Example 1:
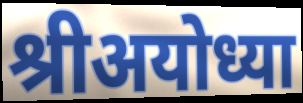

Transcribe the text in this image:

श्रीअयोध्या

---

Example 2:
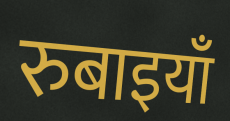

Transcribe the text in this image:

रुबाइयाँ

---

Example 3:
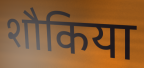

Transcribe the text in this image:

शौकिया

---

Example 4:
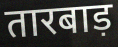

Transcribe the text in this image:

तारबाड़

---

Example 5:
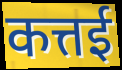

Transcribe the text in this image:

कत्तई